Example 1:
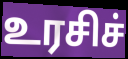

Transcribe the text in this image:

உரசிச்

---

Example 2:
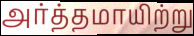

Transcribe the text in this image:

அர்த்தமாயிற்று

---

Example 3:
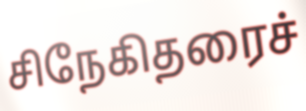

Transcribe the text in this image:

சிநேகிதரைச்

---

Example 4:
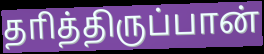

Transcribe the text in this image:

தரித்திருப்பான்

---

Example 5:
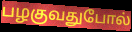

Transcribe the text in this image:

பழகுவதுபோல்